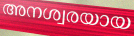
അനശ്വരയായ